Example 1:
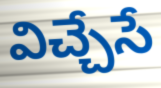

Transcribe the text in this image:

విచ్చేసే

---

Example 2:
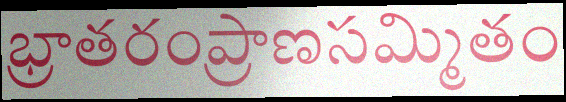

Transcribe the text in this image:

భ్రాతరంప్రాణసమ్మితం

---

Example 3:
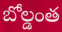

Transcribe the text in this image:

బోల్డంత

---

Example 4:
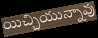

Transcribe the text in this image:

యిచ్చియున్నావు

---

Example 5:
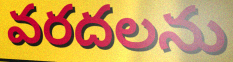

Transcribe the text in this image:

వరదలను